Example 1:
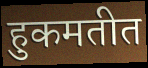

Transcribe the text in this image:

हुकमतीत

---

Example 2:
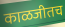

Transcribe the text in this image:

काळजीतच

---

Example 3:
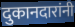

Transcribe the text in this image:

दुकानदारांनी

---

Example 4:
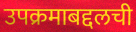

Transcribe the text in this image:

उपक्रमाबद्दलची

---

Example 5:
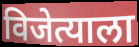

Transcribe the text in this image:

विजेत्याला